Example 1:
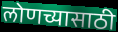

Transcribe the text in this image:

लोणच्यासाठी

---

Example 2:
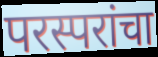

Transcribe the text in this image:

परस्परांचा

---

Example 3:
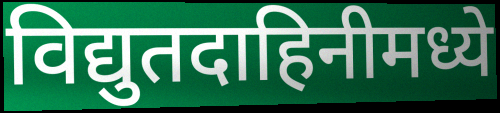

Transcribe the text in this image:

विद्युतदाहिनीमध्ये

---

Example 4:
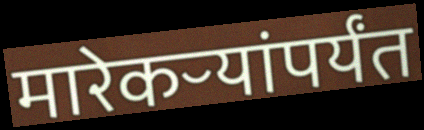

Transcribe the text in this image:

मारेकऱ्यांपर्यंत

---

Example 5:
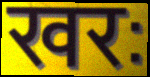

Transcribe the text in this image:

खरः